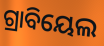
ଗ୍ରାବିୟେଲ